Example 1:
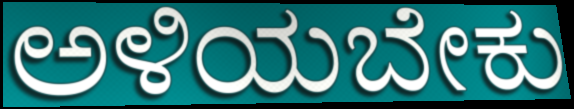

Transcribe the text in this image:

ಅಳಿಯಬೇಕು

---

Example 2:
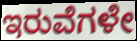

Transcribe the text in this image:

ಇರುವೆಗಳೇ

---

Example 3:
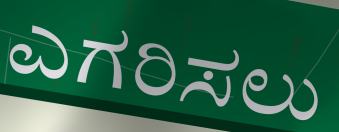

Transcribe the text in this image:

ಎಗರಿಸಲು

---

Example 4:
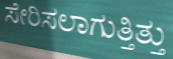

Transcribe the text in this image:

ಸೇರಿಸಲಾಗುತ್ತಿತ್ತು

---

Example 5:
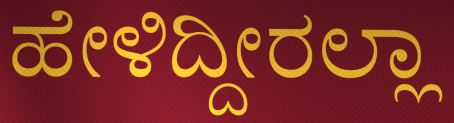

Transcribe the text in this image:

ಹೇಳಿದ್ದೀರಲ್ಲಾ